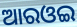
ଆରଓଇ